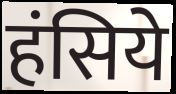
हंसिये